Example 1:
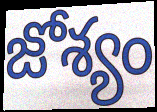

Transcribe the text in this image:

జోశ్యం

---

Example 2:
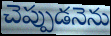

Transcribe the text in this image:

చెప్పుడనెను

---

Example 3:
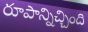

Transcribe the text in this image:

రూపాన్నిచ్చింది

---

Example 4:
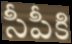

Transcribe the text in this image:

సీపీకి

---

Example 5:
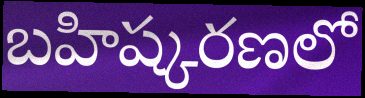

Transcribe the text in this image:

బహిష్కరణలో